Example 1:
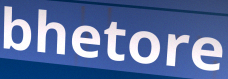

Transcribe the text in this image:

bhetore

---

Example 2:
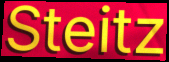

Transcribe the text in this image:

Steitz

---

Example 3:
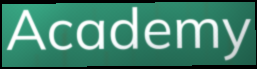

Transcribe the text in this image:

Academy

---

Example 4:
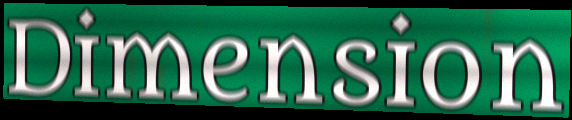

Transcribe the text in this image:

Dimension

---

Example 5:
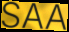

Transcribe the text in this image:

SAA